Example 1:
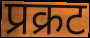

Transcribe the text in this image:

प्रक्रट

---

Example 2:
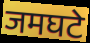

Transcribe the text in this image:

जमघटे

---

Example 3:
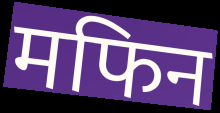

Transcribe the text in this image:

मफिन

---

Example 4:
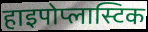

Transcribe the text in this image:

हाइपोप्लास्टिक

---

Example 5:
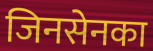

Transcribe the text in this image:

जिनसेनका